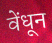
वेंधून